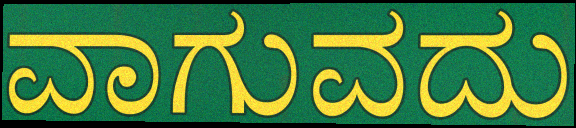
ವಾಗುವದು